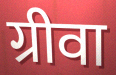
ग्रीवा